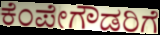
ಕೆಂಪೇಗೌಡರಿಗೆ